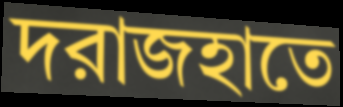
দরাজহাতে